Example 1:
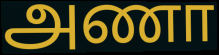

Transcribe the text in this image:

அணா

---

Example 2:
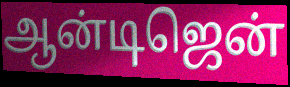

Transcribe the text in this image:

ஆன்டிஜென்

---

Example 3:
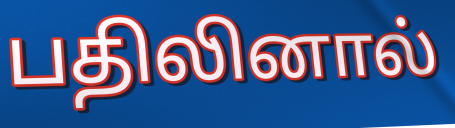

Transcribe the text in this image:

பதிலினால்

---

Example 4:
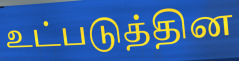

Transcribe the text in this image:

உட்படுத்தின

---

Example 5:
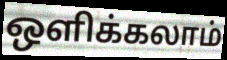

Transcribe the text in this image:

ஒளிக்கலாம்